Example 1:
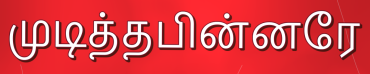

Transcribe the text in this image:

முடித்தபின்னரே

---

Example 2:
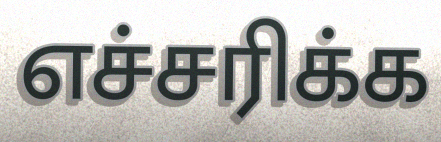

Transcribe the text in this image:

எச்சரிக்க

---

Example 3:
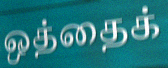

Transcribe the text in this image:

ஒத்தைக்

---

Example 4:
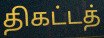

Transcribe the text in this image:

திகட்டத்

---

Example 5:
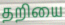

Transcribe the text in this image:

தறியை